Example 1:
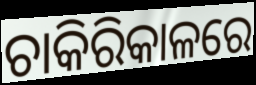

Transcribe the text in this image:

ଚାକିରିକାଳରେ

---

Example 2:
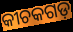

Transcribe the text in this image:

କୀଚକଗଡ଼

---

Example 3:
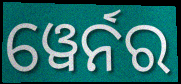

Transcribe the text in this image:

ୱେର୍ନର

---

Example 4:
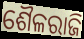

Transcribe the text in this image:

ଶୈଳରାଜି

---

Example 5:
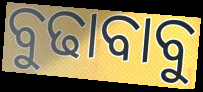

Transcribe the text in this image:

ବୁଢାବାବୁ